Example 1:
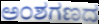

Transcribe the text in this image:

ಅಂಶಗಣದ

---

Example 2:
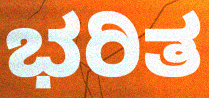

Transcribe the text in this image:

ಭರಿತ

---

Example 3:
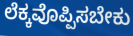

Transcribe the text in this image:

ಲೆಕ್ಕವೊಪ್ಪಿಸಬೇಕು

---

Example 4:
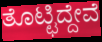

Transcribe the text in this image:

ತೊಟ್ಟಿದ್ದೇವೆ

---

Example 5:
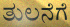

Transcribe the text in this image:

ತುಲನೆಗೆ